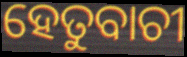
ହେତୁବାଚୀ